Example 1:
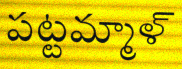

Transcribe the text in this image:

పట్టమ్మాళ్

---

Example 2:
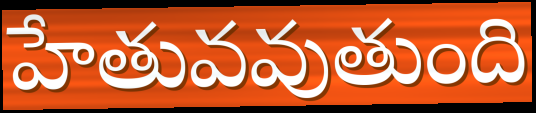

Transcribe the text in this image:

హేతువవుతుంది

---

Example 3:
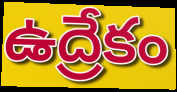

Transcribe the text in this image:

ఉద్రేకం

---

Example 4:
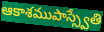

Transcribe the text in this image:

ఆకాశముపాస్స్వేతి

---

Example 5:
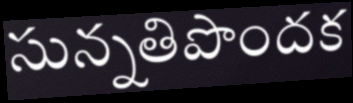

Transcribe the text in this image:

సున్నతిపొందక